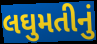
લઘુમતીનું